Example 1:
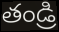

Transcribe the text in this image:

తండ్రి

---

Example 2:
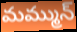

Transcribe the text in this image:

మమ్మున్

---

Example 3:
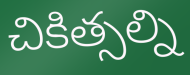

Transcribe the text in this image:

చికిత్సల్ని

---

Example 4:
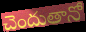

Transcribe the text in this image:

చెందుతానో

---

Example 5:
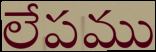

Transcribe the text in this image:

లేపము